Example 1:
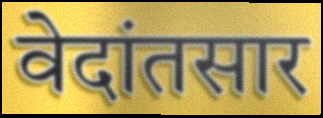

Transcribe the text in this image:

वेदांतसार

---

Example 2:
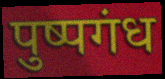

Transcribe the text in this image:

पुष्पगंध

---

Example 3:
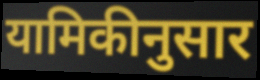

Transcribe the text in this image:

यामिकीनुसार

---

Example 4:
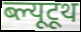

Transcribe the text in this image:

ब्ल्यूटूथ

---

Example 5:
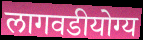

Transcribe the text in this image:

लागवडीयोग्य